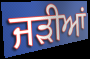
ਜੜੀਆਂ